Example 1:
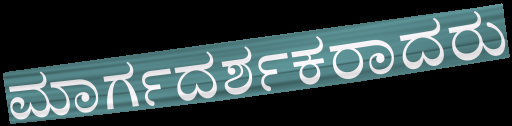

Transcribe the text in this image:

ಮಾರ್ಗದರ್ಶಕರಾದರು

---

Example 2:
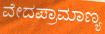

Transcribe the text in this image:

ವೇದಪ್ರಾಮಾಣ್ಯ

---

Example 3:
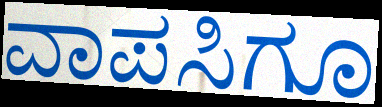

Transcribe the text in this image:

ವಾಪಸಿಗೂ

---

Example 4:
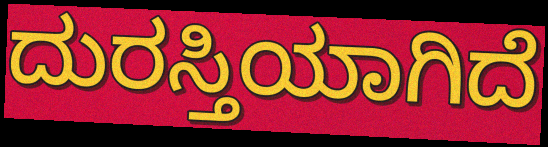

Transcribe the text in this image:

ದುರಸ್ತಿಯಾಗಿದೆ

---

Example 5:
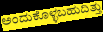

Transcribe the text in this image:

ಅಂದುಕೊಳ್ಳಬಹುದಿತ್ತು